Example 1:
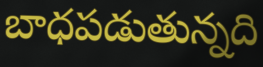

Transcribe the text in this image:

బాధపడుతున్నది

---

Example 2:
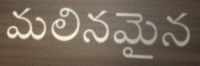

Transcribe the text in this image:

మలినమైన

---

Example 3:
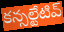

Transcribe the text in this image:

కన్సల్టేటివ్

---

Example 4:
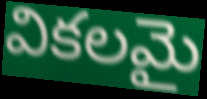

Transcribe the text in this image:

వికలమై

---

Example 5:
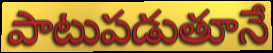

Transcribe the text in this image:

పాటుపడుతూనే